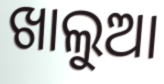
ଖାଲୁଆ